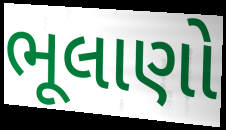
ભૂલાણો